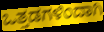
ಒತ್ತಡಗಳಿಂದಾಗಿ